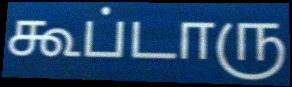
கூப்டாரு